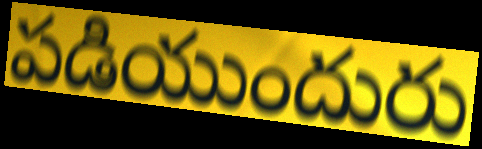
పడియుందురు